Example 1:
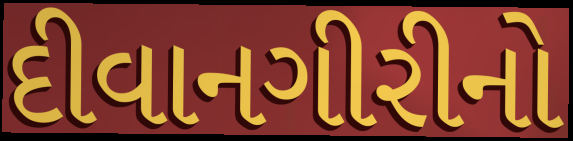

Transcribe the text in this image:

દીવાનગીરીનો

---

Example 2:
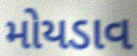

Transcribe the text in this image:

મોયડાવ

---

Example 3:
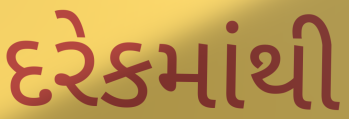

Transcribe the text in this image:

દરેકમાંથી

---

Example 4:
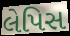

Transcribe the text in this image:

લેપિસ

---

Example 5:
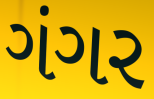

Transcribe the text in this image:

ગંગર